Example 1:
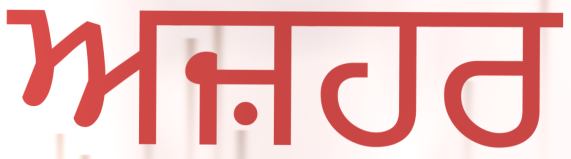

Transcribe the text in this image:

ਅਜ਼ਹਰ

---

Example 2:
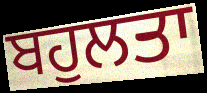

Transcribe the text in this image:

ਬਹੁਲਤਾ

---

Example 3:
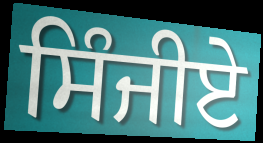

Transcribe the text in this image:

ਸਿੰਜੀਏ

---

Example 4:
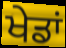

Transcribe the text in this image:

ਖੇਡਾਂ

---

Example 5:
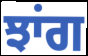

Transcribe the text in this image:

ਝਾਂਗ